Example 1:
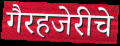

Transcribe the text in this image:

गैरहजेरीचे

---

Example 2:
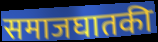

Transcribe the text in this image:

समाजघातकी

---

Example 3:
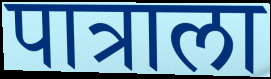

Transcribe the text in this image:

पात्राला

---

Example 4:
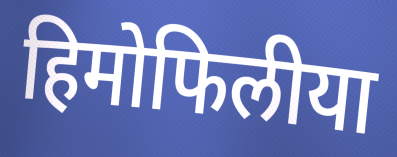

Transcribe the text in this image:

हिमोफिलीया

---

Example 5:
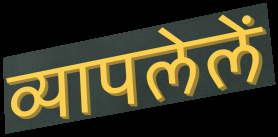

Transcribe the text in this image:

व्यापलेलें